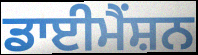
ਡਾਈਮੈਂਸ਼ਨ